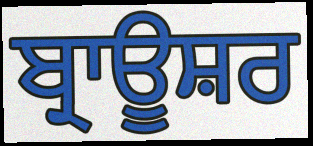
ਬ੍ਰਾਊਸ਼ਰ